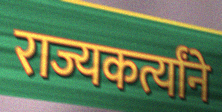
राज्यकर्त्यांने